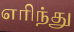
எரிந்து